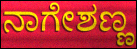
ನಾಗೇಶಣ್ಣ